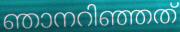
ഞാനറിഞ്ഞത്